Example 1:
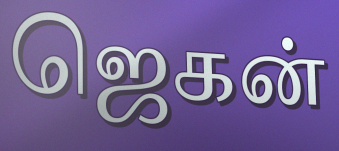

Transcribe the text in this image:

ஜெகன்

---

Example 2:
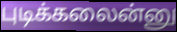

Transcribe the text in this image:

புடிக்கலைன்னு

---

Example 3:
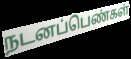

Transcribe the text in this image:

நடனப்பெண்கள்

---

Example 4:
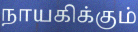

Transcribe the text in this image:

நாயகிக்கும்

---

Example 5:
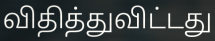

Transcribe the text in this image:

விதித்துவிட்டது